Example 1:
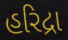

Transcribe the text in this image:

હરિદ્રા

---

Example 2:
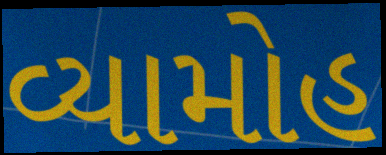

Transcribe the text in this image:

વ્યામોહ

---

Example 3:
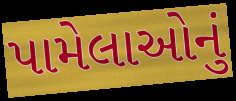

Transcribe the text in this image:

પામેલાઓનું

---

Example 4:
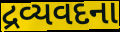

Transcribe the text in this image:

દ્રવ્યવદના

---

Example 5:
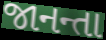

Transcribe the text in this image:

જાનન્તા